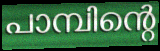
പാമ്പിന്റെ